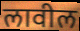
लावील